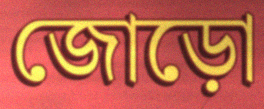
জোড়ো